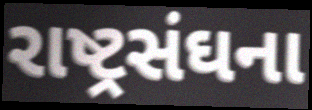
રાષ્ટ્રસંઘના